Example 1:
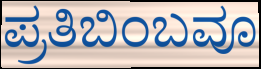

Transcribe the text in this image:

ಪ್ರತಿಬಿಂಬವೂ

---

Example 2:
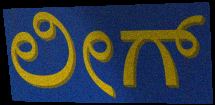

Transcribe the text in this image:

ಲೀಗ್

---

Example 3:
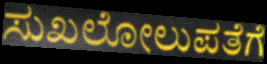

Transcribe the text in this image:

ಸುಖಲೋಲುಪತೆಗೆ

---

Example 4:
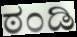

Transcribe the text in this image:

ಠಂಡಿ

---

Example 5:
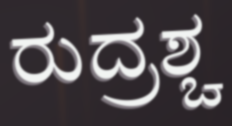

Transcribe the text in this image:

ರುದ್ರಶ್ಚ